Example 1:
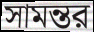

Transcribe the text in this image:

সামন্তর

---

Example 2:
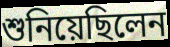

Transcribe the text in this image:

শুনিয়েছিলেন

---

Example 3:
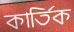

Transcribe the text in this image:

কার্তিক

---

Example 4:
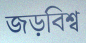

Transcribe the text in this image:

জড়বিশ্ব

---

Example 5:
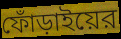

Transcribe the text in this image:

ফোঁড়াইয়ের